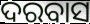
ଦରବାସ